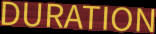
DURATION